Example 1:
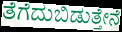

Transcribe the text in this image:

ತೆಗೆದುಬಿಡುತ್ತೇನೆ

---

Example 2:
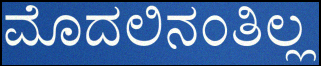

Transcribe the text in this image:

ಮೊದಲಿನಂತಿಲ್ಲ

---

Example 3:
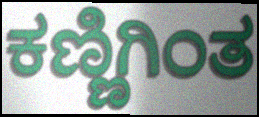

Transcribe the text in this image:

ಕಣ್ಣಿಗಿಂತ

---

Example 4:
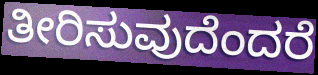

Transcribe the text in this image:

ತೀರಿಸುವುದೆಂದರೆ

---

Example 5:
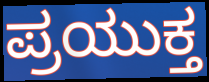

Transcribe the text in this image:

ಪ್ರಯುಕ್ತ